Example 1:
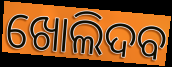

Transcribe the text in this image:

ଖୋଲିଦବ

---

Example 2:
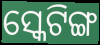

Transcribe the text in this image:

ସ୍କେଟିଙ୍ଗ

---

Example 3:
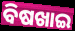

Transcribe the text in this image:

ବିଷଖାଇ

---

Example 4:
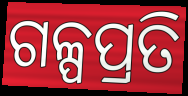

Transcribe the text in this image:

ଗଳ୍ପପ୍ରତି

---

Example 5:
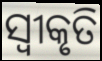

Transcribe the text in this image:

ସ୍ୱୀକୃତି